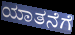
ಯಾತನೆಗೆ